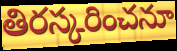
తిరస్కరించనూ